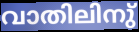
വാതിലിനു്